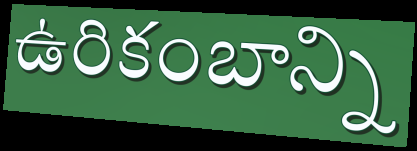
ఉరికంబాన్ని